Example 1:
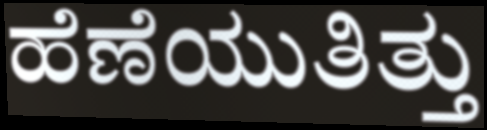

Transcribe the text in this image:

ಹೆಣೆಯುತಿತ್ತು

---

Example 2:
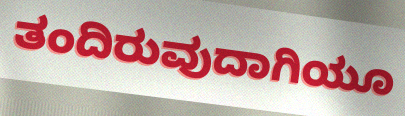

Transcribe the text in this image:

ತಂದಿರುವುದಾಗಿಯೂ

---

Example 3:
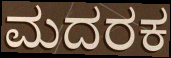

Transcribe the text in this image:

ಮದರಕ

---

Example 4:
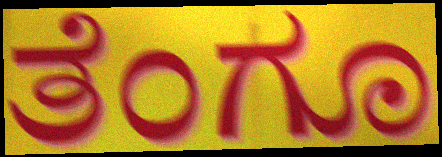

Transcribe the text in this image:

ತೆಂಗೂ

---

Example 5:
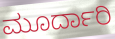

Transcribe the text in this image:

ಮೂರ್ದಾರಿ